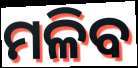
ମଳିବ